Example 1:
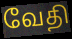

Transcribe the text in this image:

வேதி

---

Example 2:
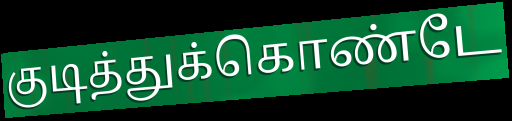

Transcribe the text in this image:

குடித்துக்கொண்டே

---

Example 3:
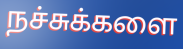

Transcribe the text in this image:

நச்சுக்களை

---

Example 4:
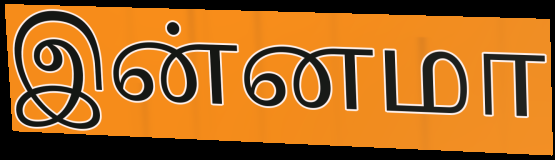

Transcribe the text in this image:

இன்னமா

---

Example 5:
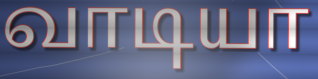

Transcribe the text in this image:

வாடியா